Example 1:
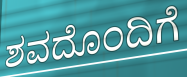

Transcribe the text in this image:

ಶವದೊಂದಿಗೆ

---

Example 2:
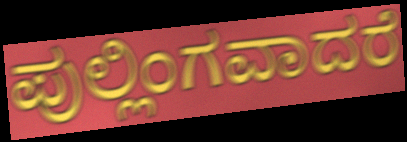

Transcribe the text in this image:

ಪುಲ್ಲಿಂಗವಾದರೆ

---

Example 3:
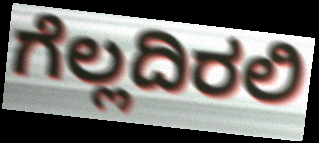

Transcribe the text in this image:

ಗೆಲ್ಲದಿರಲಿ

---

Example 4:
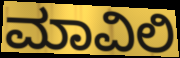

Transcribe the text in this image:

ಮಾವಿಲಿ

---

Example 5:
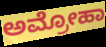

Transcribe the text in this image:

ಅಮ್ರೋಹಾ